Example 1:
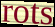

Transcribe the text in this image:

rots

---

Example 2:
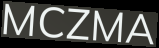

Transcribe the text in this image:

MCZMA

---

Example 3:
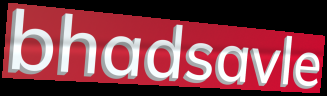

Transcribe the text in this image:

bhadsavle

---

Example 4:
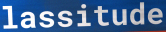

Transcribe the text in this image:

lassitude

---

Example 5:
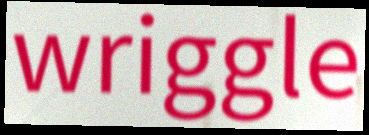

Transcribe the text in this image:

wriggle